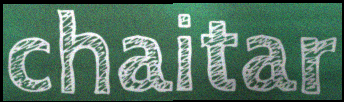
chaitar